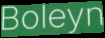
Boleyn